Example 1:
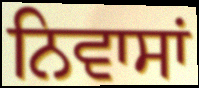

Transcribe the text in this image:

ਨਿਵਾਸਾਂ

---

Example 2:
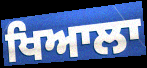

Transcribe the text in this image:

ਖਿਆਲਾ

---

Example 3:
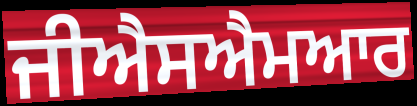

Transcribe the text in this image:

ਜੀਐਸਐਮਆਰ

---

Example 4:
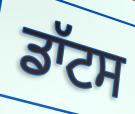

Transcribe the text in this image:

ਡਾੱਟਸ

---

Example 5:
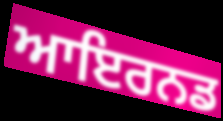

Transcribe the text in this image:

ਆਇਰਨਡ